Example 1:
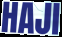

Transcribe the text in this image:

HAJI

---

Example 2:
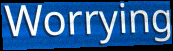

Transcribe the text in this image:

Worrying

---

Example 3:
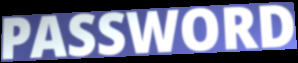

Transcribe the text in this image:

PASSWORD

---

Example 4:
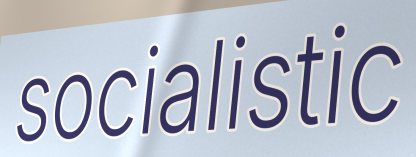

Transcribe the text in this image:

socialistic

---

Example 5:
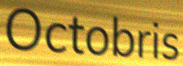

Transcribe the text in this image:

Octobris